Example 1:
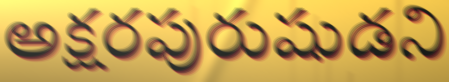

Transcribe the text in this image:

అక్షరపురుషుడని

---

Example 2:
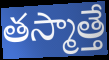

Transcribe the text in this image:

తస్మాత్తే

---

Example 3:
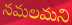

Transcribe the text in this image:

నమలమని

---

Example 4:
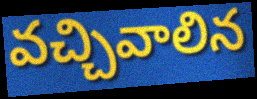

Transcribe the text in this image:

వచ్చివాలిన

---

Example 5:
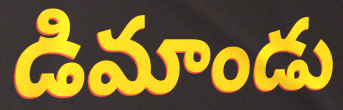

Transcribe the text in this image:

డిమాండు